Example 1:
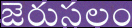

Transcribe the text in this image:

జెరుసలం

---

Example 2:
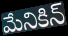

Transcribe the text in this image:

మేనికిన్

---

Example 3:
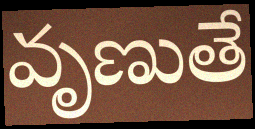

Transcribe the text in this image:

వృణుతే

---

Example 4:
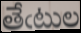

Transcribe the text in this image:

తేఁటుల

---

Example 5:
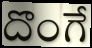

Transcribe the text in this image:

దొంగే